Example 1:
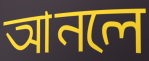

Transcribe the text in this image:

আনলে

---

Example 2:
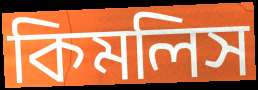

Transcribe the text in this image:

কিমলিস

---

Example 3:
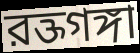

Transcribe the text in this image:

রক্তগঙ্গা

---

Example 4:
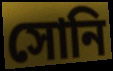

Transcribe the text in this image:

সোনি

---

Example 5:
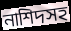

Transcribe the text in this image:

নাশিদসহ